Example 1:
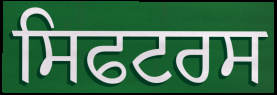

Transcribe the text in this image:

ਸਿਫਟਰਸ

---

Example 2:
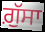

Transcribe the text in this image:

ਗ਼ੁੱਸਾ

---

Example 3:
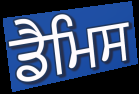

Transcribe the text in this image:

ਡੈਮਿਸ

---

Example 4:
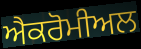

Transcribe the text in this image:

ਐਕਰੋਮੀਅਲ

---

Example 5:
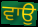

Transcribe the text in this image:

ਵਾਉ